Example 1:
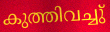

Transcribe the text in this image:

കുത്തിവച്ചു്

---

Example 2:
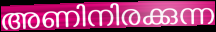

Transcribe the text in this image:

അണിനിരക്കുന്ന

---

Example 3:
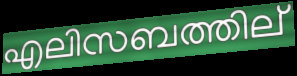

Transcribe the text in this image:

എലിസബത്തില്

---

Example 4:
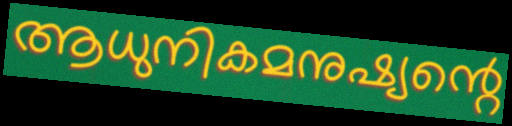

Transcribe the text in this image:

ആധുനികമനുഷ്യന്റെ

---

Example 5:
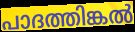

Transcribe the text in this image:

പാദത്തിങ്കൽ